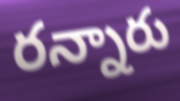
రన్నారు